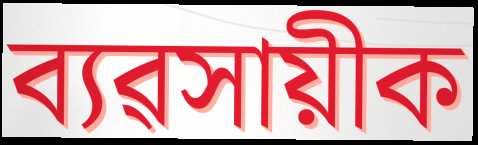
ব্যৱসায়ীক